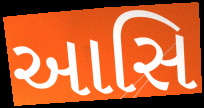
આસિ